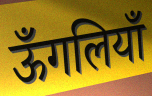
ऊँगलियाँ